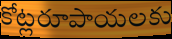
కోట్లరూపాయలకు